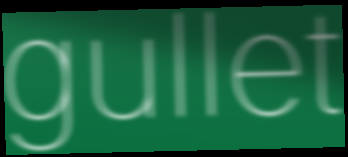
gullet